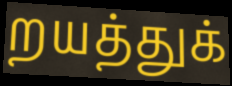
றயத்துக்